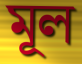
মূল